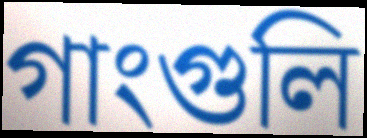
গাংগুলি